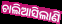
ଚାଲିଆସିଲାଣି